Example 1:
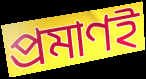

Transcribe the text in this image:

প্রমাণই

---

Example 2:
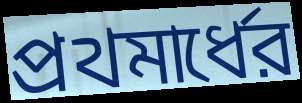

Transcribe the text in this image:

প্রথমার্ধের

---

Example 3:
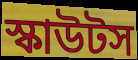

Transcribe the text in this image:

স্কাউটস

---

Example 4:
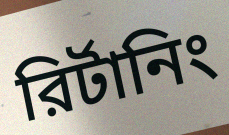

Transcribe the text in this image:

রির্টানিং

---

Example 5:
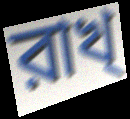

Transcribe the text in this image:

রাখ্